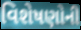
વિશેષણોની